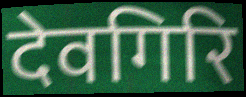
देवगिरि